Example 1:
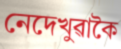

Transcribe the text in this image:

নেদেখুৱাকৈ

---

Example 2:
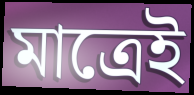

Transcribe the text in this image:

মাত্ৰেই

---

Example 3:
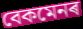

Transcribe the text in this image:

বেকমেনৰ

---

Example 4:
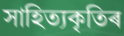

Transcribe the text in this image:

সাহিত্যকৃতিৰ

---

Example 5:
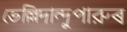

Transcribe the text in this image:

ভেল্লিদান্দুপাৰুৰ